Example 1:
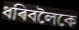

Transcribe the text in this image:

ধৰিবলৈকে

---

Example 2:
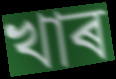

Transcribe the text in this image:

খাৰ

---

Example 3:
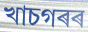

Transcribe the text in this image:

খাচগৰৰ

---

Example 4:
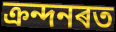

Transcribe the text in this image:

ক্ৰন্দনৰত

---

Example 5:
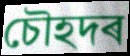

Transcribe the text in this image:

চৌহদৰ